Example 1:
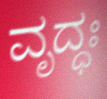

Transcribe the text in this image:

ವೃದ್ಧಃ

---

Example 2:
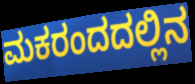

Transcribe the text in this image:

ಮಕರಂದದಲ್ಲಿನ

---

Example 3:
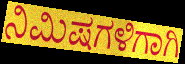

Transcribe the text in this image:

ನಿಮಿಷಗಳಿಗಾಗಿ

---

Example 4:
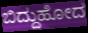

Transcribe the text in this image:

ಬಿದ್ದುಹೋದ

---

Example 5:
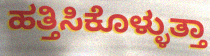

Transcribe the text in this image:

ಹತ್ತಿಸಿಕೊಳ್ಳುತ್ತಾ